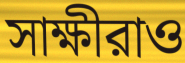
সাক্ষীরাও